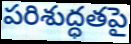
పరిశుద్ధతపై